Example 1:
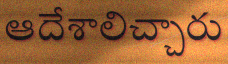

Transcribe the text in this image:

ఆదేశాలిచ్చారు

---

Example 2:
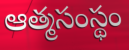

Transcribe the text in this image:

ఆత్మసంస్థం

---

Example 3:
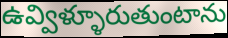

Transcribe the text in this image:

ఉవ్విళ్ళూరుతుంటాను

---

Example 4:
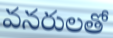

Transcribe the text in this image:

వనరులతో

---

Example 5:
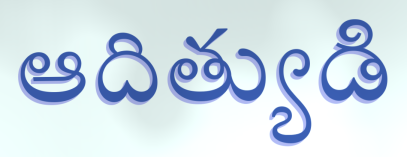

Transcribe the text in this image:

ఆదిత్యుడి